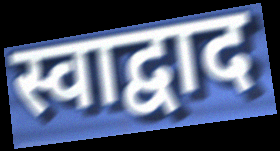
स्वाद्वाद